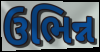
ઉભિન્ન